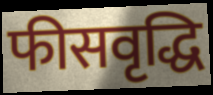
फीसवृद्धि